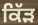
ਕਿੱੜ